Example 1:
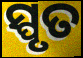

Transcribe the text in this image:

ସ୍ପୃତ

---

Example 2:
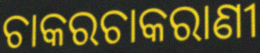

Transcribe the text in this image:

ଚାକରଚାକରାଣୀ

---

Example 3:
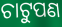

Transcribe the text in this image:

ଚାଟୁପଣ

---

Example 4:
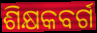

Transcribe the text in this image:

ଶିକ୍ଷକବର୍ଗ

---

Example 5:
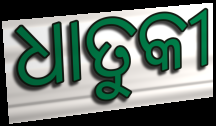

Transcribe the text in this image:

ଧାତୁକୀ